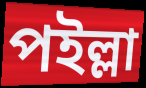
পইল্লা